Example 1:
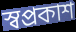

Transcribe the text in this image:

স্বপ্ৰকাশ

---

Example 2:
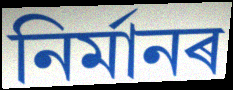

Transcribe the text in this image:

নিৰ্মানৰ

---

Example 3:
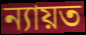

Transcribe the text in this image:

ন্যায়ত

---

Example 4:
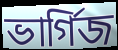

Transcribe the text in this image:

ভাৰ্গিজ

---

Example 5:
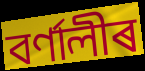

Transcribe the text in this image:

বৰ্ণালীৰ